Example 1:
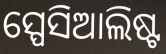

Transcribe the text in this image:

ସ୍ପେସିଆଲିଷ୍ଟ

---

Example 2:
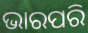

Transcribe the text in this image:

ଭାରପରି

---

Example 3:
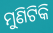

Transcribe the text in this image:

ମୁଣିଟିକି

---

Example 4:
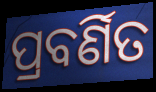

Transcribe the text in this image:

ପ୍ରବର୍ଣିତ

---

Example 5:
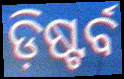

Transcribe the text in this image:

ଡ଼ିଷ୍ଟର୍ବ